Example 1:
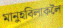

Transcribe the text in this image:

মানুহবিলাকলৈ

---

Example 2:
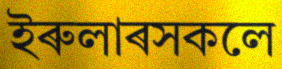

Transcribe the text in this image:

ইৰুলাৰসকলে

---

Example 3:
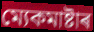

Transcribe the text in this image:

ম্যেকমাষ্টাৰ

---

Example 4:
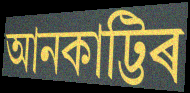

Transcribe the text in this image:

আনকাট্টিৰ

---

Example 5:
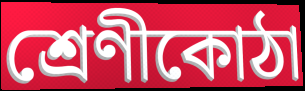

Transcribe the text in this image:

শ্ৰেণীকোঠা